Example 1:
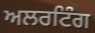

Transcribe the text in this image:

ਅਲਰਟਿੰਗ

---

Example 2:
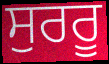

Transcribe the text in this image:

ਸੁਰਰੂ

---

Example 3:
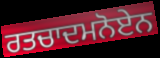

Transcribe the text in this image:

ਰਤਚਾਦਮਨੋਏਨ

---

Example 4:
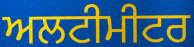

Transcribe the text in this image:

ਅਲਟੀਮੀਟਰ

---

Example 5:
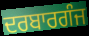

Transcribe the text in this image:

ਦਰਬਾਰਗੰਜ